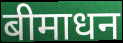
बीमाधन